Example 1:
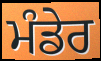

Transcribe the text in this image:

ਮੰਡੇਰ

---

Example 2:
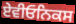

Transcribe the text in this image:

ਏਵੀਓਨਿਕਸ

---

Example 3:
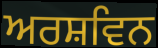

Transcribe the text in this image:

ਅਰਸ਼ਵਿਨ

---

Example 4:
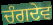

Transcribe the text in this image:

ਚੰਗਦੇਵ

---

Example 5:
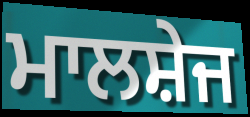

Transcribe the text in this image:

ਮਾਲਸ਼ੇਜ